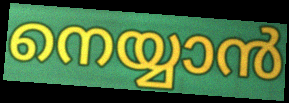
നെയ്യാൻ